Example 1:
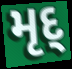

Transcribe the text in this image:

મૃદ્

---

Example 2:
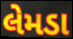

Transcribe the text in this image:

લેમડા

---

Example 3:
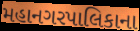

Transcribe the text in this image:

મહાનગરપાલિકાના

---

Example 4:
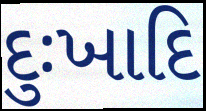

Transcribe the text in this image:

દુઃખાદિ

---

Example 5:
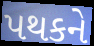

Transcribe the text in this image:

પથકને